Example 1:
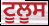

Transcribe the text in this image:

ਟੂਲੂਸ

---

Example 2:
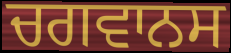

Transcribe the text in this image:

ਚਗਵਾਨਸ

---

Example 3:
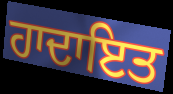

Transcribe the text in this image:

ਹਾਦਾਇਤ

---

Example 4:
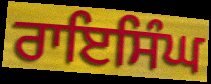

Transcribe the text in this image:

ਰਾਇਸਿੰਘ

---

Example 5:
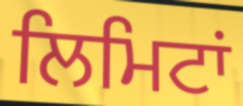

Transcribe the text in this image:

ਲਿਮਿਟਾਂ